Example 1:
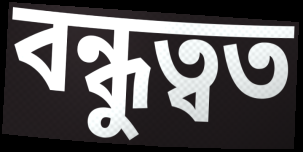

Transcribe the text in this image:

বন্ধুত্বত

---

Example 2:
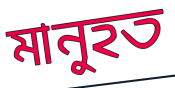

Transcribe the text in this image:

মানুহত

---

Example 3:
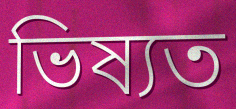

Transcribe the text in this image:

ভিষ্যত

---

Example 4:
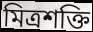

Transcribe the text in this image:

মিত্ৰশক্তি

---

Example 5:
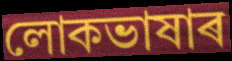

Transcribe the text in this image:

লোকভাষাৰ